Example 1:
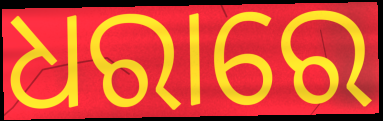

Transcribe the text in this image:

ଧରାରେ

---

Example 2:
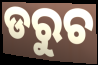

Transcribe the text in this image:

ଡରୁଚ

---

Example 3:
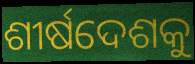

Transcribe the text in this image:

ଶୀର୍ଷଦେଶକୁ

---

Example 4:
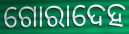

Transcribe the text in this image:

ଗୋରାଦେହ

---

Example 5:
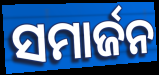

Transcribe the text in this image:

ସମାର୍ଜନ